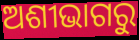
ଅଶୀଭାଗରୁ